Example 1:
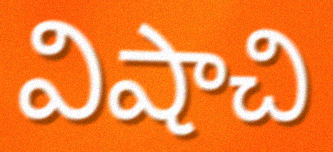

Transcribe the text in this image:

విషాచి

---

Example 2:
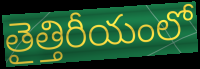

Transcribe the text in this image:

తైత్తిరీయంలో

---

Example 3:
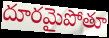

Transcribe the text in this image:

దూరమైపోతూ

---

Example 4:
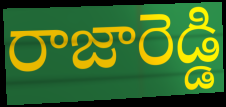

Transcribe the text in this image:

రాజారెడ్డి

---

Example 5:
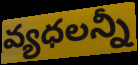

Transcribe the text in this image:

వ్యధలన్నీ